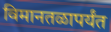
विमानतळापर्यंत